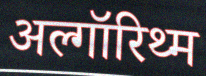
अल्गॉरिथ्म